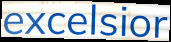
excelsior